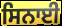
ਸਿਨਾਈ